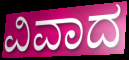
ವಿವಾದ